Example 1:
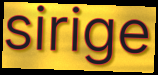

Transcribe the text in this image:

sirige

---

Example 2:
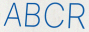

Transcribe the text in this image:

ABCR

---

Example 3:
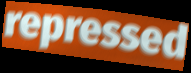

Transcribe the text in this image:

repressed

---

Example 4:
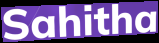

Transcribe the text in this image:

Sahitha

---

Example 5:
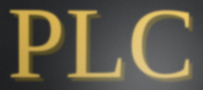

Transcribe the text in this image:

PLC